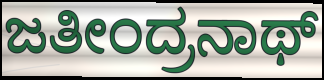
ಜತೀಂದ್ರನಾಥ್